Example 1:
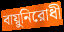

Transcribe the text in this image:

বায়ুনিরোধী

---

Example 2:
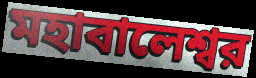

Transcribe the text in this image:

মহাবালেশ্বর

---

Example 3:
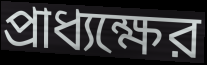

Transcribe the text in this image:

প্রাধ্যক্ষের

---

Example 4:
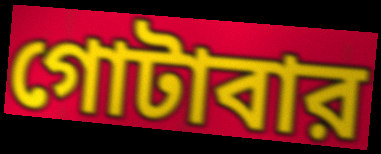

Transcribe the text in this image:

গোটাবার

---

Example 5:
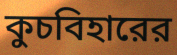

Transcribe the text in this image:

কুচবিহারের